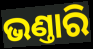
ଭଣ୍ତାରି